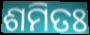
ଶମିତଃ